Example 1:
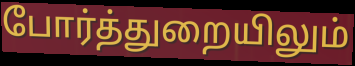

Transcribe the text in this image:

போர்த்துறையிலும்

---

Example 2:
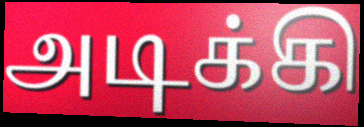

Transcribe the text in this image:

அடிக்கி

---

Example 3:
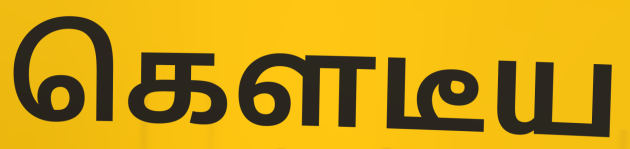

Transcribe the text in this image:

கௌடீய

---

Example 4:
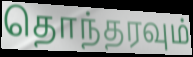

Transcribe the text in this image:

தொந்தரவும்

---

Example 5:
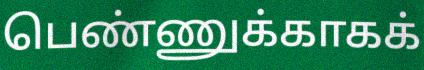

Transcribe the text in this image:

பெண்ணுக்காகக்